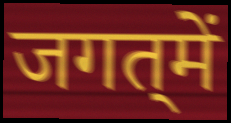
जगत्‌में